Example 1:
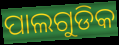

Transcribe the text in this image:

ପାଲଗୁଡିକ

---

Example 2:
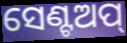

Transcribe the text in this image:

ସେଣ୍ଟଅପ୍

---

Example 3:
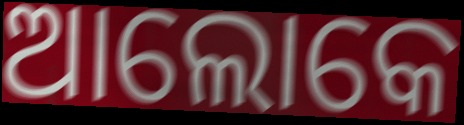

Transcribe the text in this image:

ଆଲୋକେ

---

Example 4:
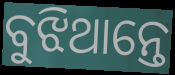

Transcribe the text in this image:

ବୁଝିଥାନ୍ତେ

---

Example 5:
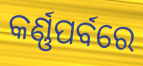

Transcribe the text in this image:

କର୍ଣ୍ଣପର୍ବରେ